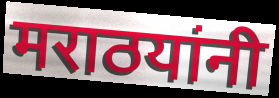
मराठयांनी